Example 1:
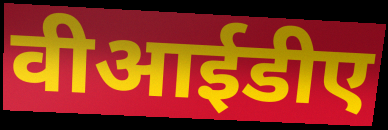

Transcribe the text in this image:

वीआईडीए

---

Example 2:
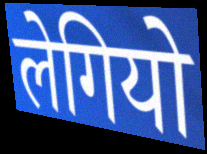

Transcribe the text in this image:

लेगियो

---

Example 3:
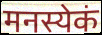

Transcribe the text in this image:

मनस्येकं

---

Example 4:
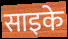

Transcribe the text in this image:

साइके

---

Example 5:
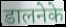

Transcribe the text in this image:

डालनेके